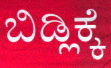
ಬಿಡ್ಲಿಕ್ಕೆ